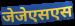
जेजेएसएस